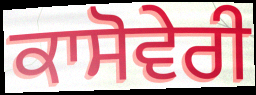
ਕਾਸੋਵੇਰੀ